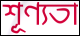
শূণ্যতা